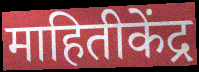
माहितीकेंद्र